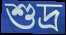
শুদ্র